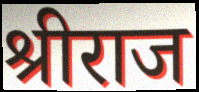
श्रीराज